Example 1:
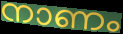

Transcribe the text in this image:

നാണം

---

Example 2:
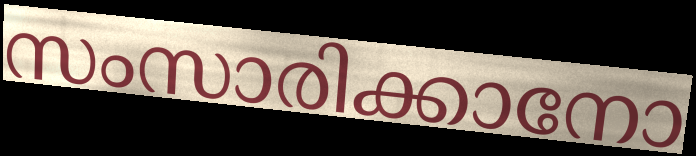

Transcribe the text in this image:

സംസാരിക്കാനോ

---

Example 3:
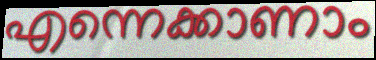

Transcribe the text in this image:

എന്നെക്കാണാം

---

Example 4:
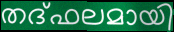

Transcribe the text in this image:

തദ്ഫലമായി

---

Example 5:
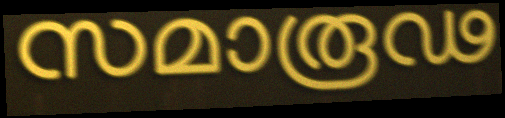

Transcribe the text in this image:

സമാരൂഢ